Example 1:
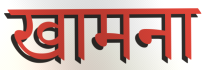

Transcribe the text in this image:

खामना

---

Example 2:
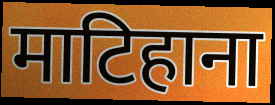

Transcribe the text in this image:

माटिहाना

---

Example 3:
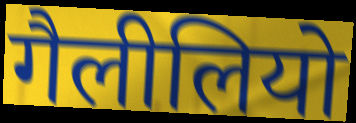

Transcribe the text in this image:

गैलीलियो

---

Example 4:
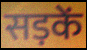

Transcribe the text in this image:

सड़कें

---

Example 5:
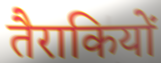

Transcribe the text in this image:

तैराकियों